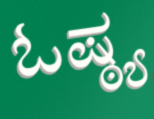
ಓಷ್ಠ್ಯ